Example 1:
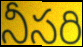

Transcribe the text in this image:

నీసరి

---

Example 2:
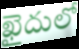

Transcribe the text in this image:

ఖైదులో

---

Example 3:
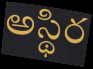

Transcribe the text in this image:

అస్థిర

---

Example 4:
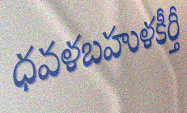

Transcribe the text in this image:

ధవళబహుళకీర్తీ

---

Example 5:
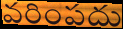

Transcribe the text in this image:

వరింపదు